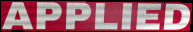
APPLIED